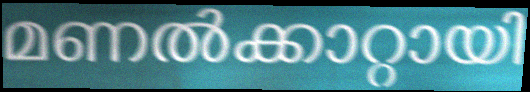
മണൽക്കാറ്റായി